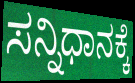
ಸನ್ನಿಧಾನಕ್ಕೆ